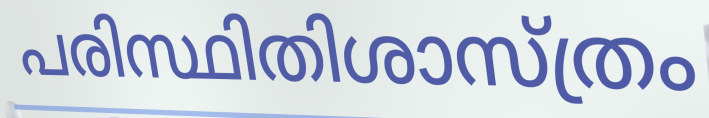
പരിസ്ഥിതിശാസ്ത്രം